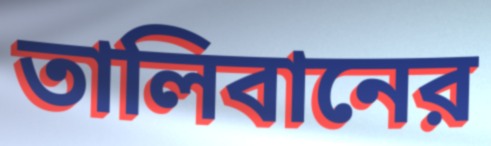
তালিবানের